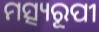
ମତ୍ସ୍ୟରୂପୀ